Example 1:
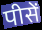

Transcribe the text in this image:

पीसें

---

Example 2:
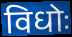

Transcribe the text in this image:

विधोः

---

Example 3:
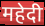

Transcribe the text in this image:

महेदी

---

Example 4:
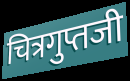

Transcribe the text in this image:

चित्रगुप्तजी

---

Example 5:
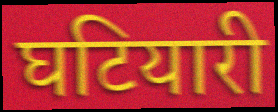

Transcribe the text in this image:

घटियारी